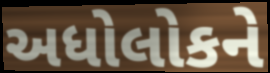
અધોલોકને